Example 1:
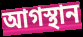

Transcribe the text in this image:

আগস্থান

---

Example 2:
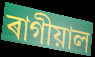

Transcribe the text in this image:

ৰাগীয়াল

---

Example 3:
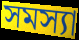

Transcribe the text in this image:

সমস্যা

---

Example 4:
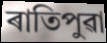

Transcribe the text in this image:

ৰাতিপুৱা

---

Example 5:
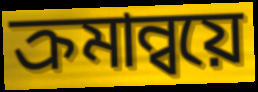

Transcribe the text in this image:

ক্ৰমান্বয়ে